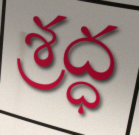
శ్రద్ధ